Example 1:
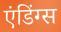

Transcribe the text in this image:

एंडिंग्स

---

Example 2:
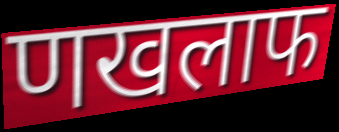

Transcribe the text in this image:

णखलाफ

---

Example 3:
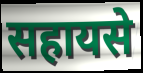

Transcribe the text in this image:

सहायसे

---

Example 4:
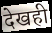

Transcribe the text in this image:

देखही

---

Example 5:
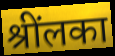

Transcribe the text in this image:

श्रींलका